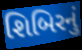
શિબિરનું